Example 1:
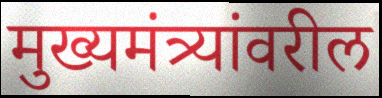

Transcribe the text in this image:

मुख्यमंत्र्यांवरील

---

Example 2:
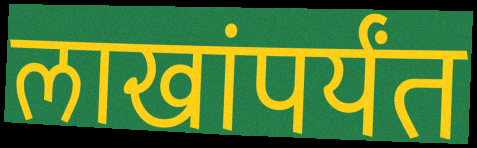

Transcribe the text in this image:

लाखांपर्यंत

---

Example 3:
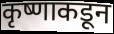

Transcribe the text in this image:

कृष्णाकडून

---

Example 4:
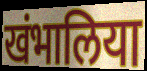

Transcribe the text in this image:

खंभालिया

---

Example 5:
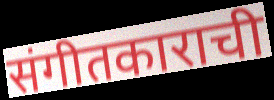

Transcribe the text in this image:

संगीतकाराची